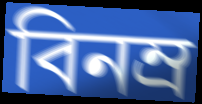
বিনম্র